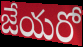
జేయరో